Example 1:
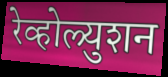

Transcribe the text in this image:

रेव्होल्युशन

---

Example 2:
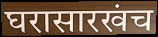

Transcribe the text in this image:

घरासारखंच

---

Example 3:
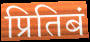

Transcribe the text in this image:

प्रितिबं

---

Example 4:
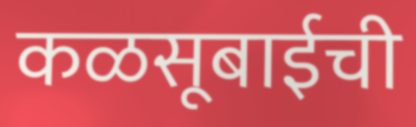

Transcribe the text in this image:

कळसूबाईची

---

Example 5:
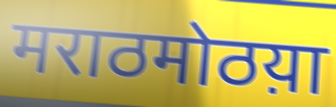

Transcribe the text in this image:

मराठमोठय़ा